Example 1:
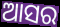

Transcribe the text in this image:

ଆସର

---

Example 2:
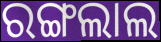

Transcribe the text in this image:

ରଙ୍ଗଲାଲ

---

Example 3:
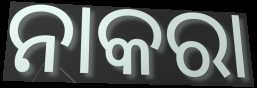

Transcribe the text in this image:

ନାକରା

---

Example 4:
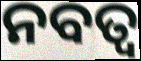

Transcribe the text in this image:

ନବତ୍ଵ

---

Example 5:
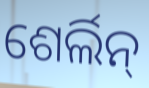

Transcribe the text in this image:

ଶେର୍ଲିନ୍